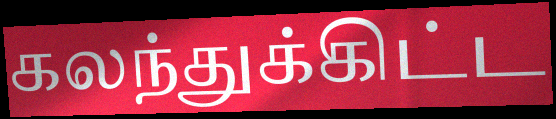
கலந்துக்கிட்ட